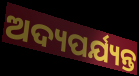
ଅଦ୍ୟପର୍ଯ୍ୟନ୍ତ